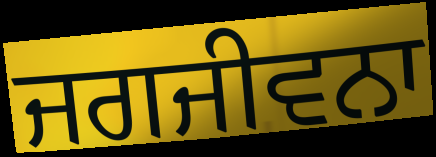
ਜਗਜੀਵਨਾ